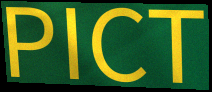
PICT